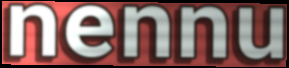
nennu